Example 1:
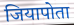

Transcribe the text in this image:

जियापोता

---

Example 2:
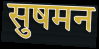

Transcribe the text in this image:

सुषमन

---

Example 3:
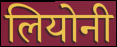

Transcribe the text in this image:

लियोनी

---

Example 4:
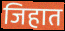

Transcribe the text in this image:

जिहात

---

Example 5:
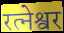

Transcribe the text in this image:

रत्नेश्वर